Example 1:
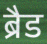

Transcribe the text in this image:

ब्रैड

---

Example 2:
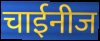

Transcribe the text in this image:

चाईनीज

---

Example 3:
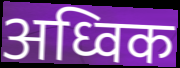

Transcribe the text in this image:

अध्विक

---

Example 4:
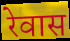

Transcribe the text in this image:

रेवास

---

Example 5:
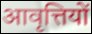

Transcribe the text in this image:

आवृत्तियों